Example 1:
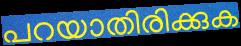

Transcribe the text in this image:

പറയാതിരിക്കുക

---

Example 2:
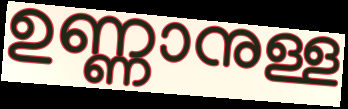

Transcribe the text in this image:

ഉണ്ണാനുള്ള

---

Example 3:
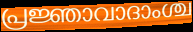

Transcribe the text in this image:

പ്രജ്ഞാവാദാംശ്ച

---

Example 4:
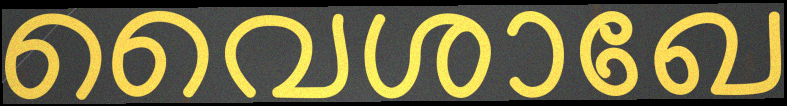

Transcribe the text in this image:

വൈശാഖേ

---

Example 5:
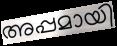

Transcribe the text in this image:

അപ്പമായി